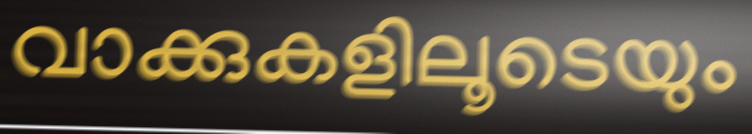
വാക്കുകളിലൂടെയും